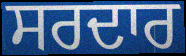
ਸਰਦਾਰ